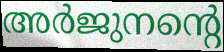
അർജുനന്റെ